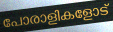
പോരാളികളോട്